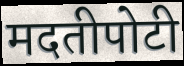
मदतीपोटी